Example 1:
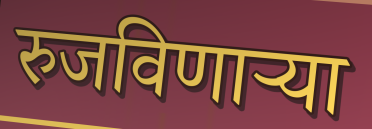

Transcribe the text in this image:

रुजविणाऱ्या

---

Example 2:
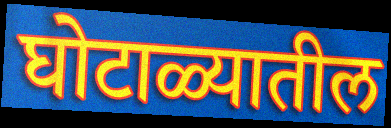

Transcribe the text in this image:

घोटाळ्यातील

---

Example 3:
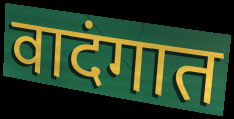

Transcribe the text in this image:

वादंगात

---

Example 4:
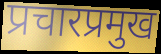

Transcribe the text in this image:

प्रचारप्रमुख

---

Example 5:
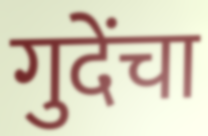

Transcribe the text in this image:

गुदेंचा